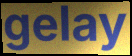
gelay